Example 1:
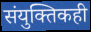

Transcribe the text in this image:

संयुक्तिकही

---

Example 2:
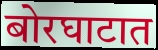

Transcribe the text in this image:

बोरघाटात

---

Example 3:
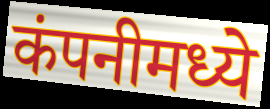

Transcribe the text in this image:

कंपनीमध्ये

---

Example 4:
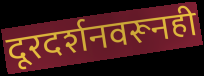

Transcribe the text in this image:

दूरदर्शनवरूनही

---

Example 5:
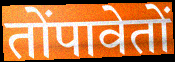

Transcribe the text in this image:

तोंपावेतों